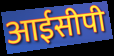
आईसीपी